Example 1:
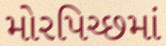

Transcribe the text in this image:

મોરપિચ્છમાં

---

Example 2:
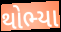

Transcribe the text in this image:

થોભ્યા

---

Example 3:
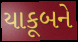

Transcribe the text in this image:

યાકૂબને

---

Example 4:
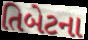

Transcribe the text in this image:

તિબેટના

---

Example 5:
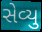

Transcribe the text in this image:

સેવ્યુ